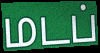
மடப்